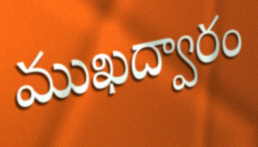
ముఖద్వారం